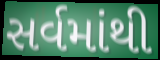
સર્વમાંથી